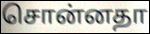
சொன்னதா